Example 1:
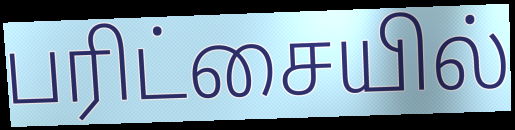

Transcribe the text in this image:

பரிட்சையில்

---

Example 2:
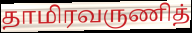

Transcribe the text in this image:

தாமிரவருணித்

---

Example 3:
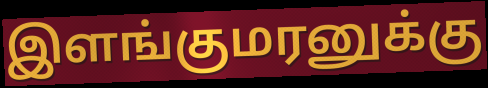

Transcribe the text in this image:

இளங்குமரனுக்கு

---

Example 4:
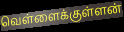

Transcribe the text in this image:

வெள்ளைக்குள்ளன்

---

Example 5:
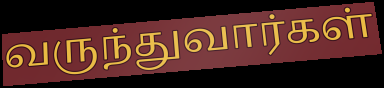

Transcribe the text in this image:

வருந்துவார்கள்